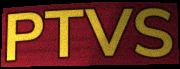
PTVS